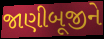
જાણીબૂજીને